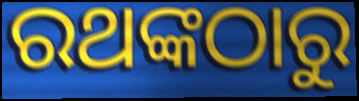
ରଥଙ୍କଠାରୁ